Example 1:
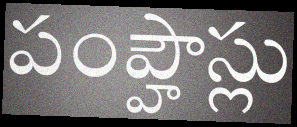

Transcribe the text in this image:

పంప్హౌస్లు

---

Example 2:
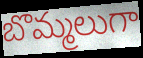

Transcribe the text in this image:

బొమ్మలుగా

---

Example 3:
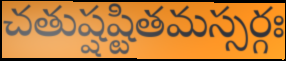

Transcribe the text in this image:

చతుష్షష్టితమస్సర్గః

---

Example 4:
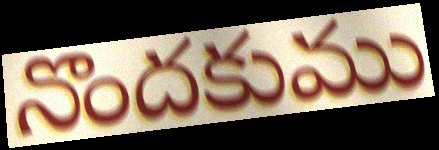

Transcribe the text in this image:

నొందకుము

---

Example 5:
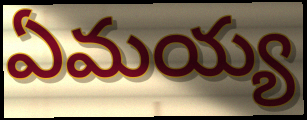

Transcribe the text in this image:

ఏమయ్య